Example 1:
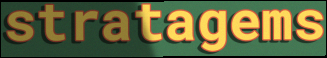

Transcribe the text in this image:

stratagems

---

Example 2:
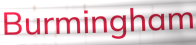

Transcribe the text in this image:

Burmingham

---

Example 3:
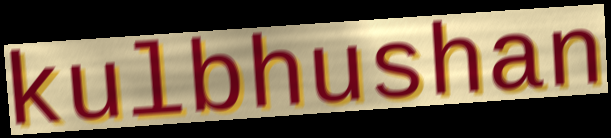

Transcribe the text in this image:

kulbhushan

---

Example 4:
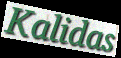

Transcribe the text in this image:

Kalidas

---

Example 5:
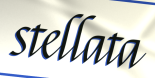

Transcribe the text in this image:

stellata